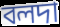
বলদা